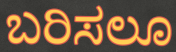
ಬರಿಸಲೂ